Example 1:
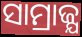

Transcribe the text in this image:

ସାମ୍ରାଜ୍ଯ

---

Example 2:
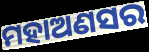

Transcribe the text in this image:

ମହାଅଣସର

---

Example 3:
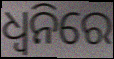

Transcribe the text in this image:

ଧ୍ଵନିରେ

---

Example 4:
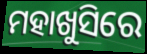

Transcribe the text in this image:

ମହାଖୁସିରେ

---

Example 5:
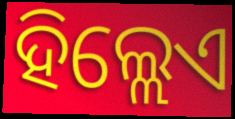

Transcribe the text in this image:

ହିଲ୍ଲେଏ